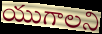
యుగాలని